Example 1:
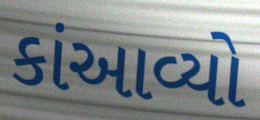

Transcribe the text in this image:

કાંઆવ્યો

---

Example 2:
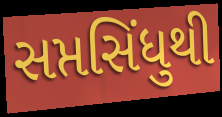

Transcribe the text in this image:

સપ્તસિંધુથી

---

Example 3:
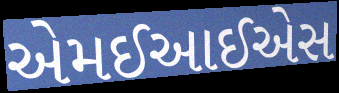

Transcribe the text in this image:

એમઈઆઈએસ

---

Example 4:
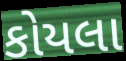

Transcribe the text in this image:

કોયલા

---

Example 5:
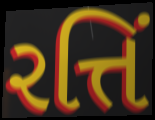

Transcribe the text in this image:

રત્તિં